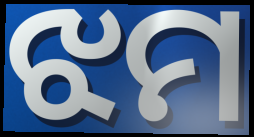
ଝମ